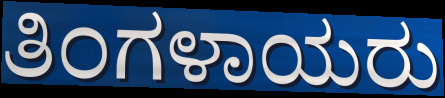
ತಿಂಗಳಾಯರು